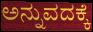
ಅನ್ನುವದಕ್ಕೆ